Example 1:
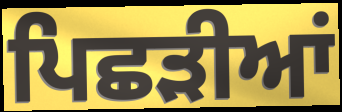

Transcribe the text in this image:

ਪਿਛੜੀਆਂ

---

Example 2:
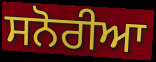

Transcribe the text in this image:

ਸਨੋਰੀਆ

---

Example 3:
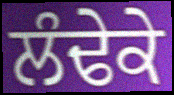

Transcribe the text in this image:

ਲੰਢੇਕੇ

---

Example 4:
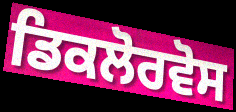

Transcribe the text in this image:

ਡਿਕਲੋਰਵੋਸ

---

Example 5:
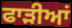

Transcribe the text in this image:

ਫਾੜੀਆਂ